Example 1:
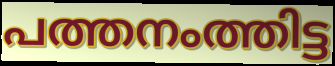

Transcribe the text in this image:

പത്തനംത്തിട്ട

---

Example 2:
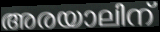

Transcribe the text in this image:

അരയാലിന്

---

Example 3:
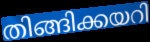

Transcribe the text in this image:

തിങ്ങിക്കയറി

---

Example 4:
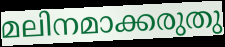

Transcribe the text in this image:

മലിനമാക്കരുതു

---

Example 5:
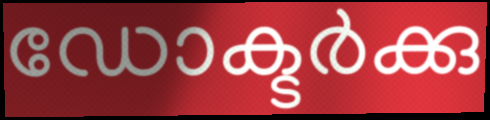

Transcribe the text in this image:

ഡോക്ടർക്കു